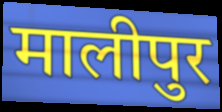
मालीपुर